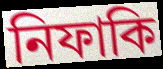
নিফাকি